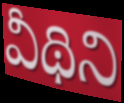
వీథిని